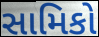
સામિકો